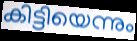
കിട്ടിയെന്നും